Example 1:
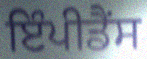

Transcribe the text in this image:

ਇੰਪੀਡੈਂਸ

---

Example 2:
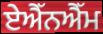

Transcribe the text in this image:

ਏਐੱਨਐੱਮ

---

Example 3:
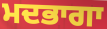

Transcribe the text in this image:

ਮਦਭਾਗਾ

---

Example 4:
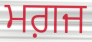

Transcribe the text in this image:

ਮਗ਼ਜ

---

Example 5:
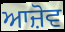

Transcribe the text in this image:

ਆਜ਼ੋਵ